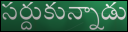
సర్దుకున్నాడు